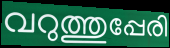
വറുത്തുപ്പേരി